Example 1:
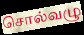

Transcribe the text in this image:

சொல்வழு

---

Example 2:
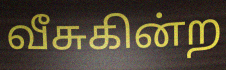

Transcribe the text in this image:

வீசுகின்ற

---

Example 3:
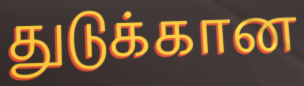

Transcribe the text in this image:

துடுக்கான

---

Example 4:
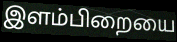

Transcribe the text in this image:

இளம்பிறையை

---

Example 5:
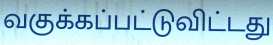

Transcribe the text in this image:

வகுக்கப்பட்டுவிட்டது